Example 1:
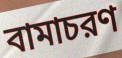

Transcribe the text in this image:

বামাচরণ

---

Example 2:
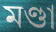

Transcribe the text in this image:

মণ্ডা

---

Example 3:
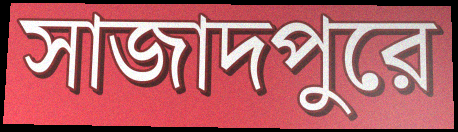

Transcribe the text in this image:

সাজাদপুরে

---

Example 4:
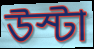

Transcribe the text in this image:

উস্টা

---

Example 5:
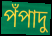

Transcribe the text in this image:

পঁপাদু